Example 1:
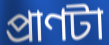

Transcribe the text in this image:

প্রাণটা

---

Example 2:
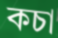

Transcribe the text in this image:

কচা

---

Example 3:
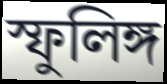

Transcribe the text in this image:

স্ফুলিঙ্গ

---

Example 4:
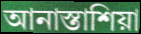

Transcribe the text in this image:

আনাস্তাশিয়া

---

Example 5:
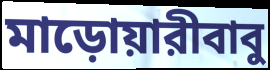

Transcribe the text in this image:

মাড়োয়ারীবাবু